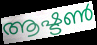
ആഷ്ടൺ